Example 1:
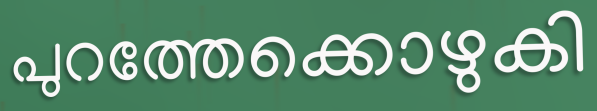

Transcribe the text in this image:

പുറത്തേക്കൊഴുകി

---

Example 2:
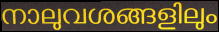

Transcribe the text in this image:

നാലുവശങ്ങളിലും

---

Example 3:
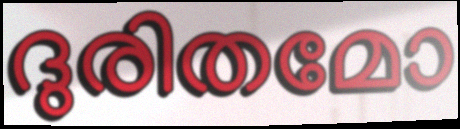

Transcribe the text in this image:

ദുരിതമോ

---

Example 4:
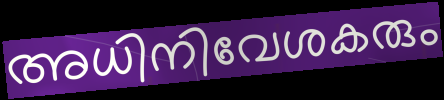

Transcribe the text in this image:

അധിനിവേശകരും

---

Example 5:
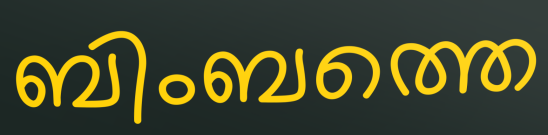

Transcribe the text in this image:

ബിംബത്തെ